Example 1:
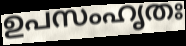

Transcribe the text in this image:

ഉപസംഹൃതഃ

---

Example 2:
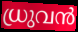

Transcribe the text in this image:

ധ്രുവൻ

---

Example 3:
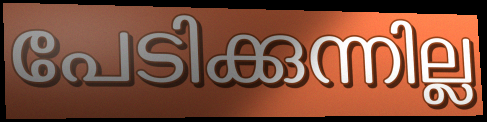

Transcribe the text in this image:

പേടിക്കുന്നില്ല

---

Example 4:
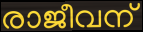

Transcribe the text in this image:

രാജീവന്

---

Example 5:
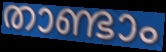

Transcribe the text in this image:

താണ്ടാം